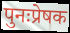
पुनःप्रेषक